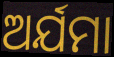
ଅର୍ଯମା